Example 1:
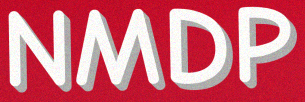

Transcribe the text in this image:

NMDP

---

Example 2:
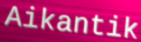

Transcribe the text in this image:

Aikantik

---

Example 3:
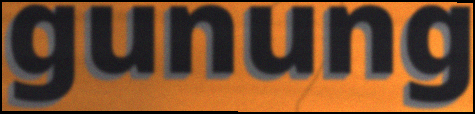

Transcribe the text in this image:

gunung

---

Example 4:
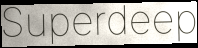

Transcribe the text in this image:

Superdeep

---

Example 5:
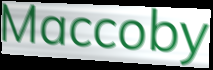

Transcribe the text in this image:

Maccoby